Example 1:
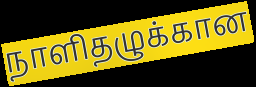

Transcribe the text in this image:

நாளிதழுக்கான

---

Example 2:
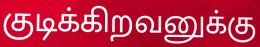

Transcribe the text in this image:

குடிக்கிறவனுக்கு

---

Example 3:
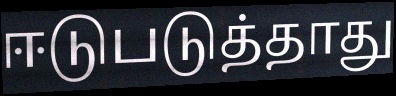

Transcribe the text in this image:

ஈடுபடுத்தாது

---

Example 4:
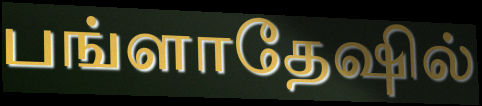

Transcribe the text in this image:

பங்ளாதேஷில்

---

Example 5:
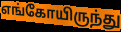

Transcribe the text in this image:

எங்கோயிருந்து